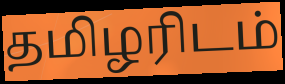
தமிழரிடம்